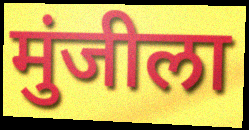
मुंजीला